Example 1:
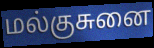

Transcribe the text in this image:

மல்குசுனை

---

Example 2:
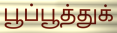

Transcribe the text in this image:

பூப்பூத்துக்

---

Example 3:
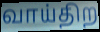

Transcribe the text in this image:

வாய்திற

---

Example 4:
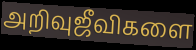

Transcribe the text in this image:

அறிவுஜீவிகளை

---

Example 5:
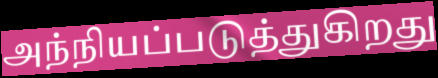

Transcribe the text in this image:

அந்நியப்படுத்துகிறது